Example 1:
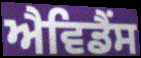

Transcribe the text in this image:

ਐਵਿਡੈਂਸ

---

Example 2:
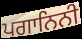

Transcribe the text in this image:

ਪਗਾਨਿਨੀ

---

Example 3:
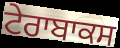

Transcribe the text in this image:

ਟੇਰਾਬਾਕਸ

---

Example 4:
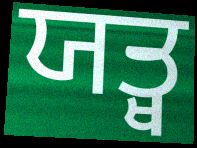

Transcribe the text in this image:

ਯਤ੍ਥ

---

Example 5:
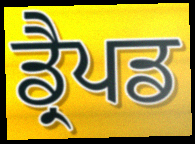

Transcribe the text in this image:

ਡ੍ਰੈਪਡ